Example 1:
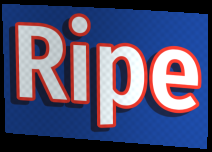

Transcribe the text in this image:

Ripe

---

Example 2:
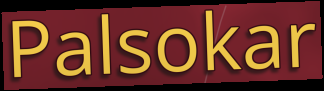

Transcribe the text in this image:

Palsokar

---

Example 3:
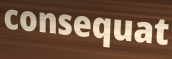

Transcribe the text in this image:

consequat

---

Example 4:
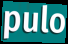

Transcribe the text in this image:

pulo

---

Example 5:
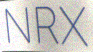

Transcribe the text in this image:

NRX